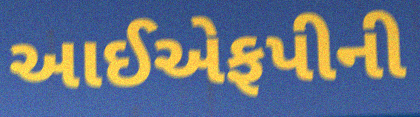
આઈએફપીની